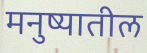
मनुष्यातील